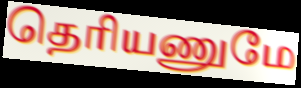
தெரியணுமே